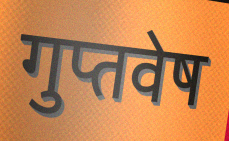
गुप्तवेष